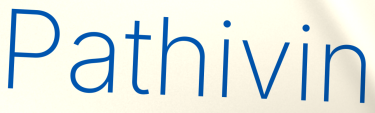
Pathivin